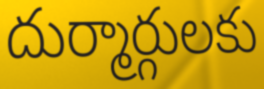
దుర్మార్గులకు